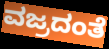
ವಜ್ರದಂತೆ